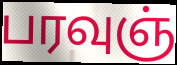
பரவுஞ்